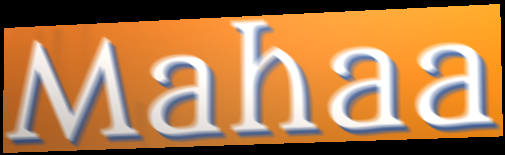
Mahaa